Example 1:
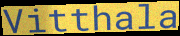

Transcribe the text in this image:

Vitthala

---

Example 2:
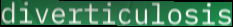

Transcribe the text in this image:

diverticulosis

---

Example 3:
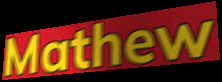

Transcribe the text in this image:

Mathew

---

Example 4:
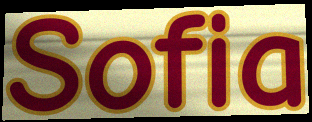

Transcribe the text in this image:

Sofia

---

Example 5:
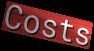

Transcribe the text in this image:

Costs